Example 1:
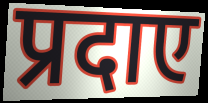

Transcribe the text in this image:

प्रदाए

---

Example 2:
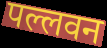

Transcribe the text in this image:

पल्लवन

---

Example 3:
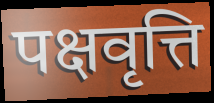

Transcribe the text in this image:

पक्षवृत्ति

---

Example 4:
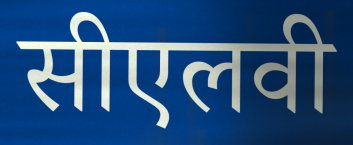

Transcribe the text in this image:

सीएलवी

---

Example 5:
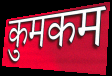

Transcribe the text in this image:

कुमकम